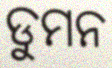
ଡୁମନ